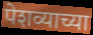
पेशव्याच्या